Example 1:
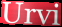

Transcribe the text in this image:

Urvi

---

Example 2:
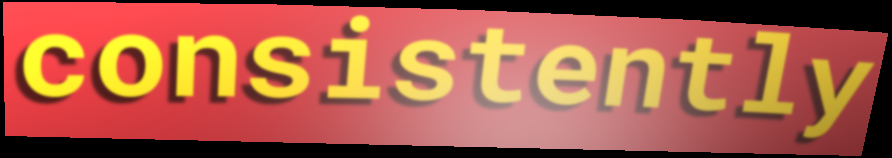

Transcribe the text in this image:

consistently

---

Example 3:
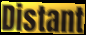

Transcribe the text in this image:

Distant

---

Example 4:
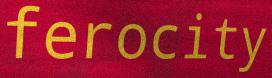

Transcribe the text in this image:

ferocity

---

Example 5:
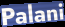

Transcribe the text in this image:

Palani